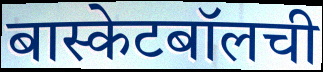
बास्केटबॉलची